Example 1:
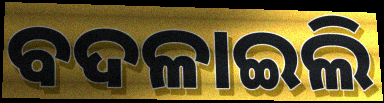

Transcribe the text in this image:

ବଦଳାଇଲି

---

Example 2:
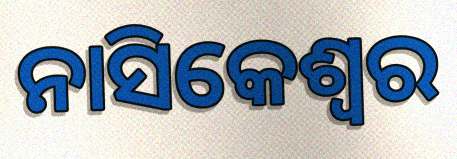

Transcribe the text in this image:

ନାସିକେଶ୍ୱର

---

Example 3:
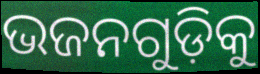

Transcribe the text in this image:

ଭଜନଗୁଡ଼ିକୁ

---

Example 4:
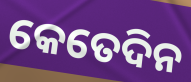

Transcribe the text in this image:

କେତେଦିନ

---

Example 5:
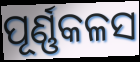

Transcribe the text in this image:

ପୂର୍ଣ୍ଣକଳସ